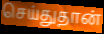
செய்துதான்